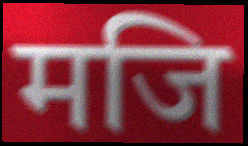
मजि